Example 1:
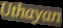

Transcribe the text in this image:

Uthayan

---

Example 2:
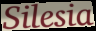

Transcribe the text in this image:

Silesia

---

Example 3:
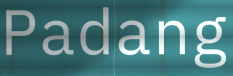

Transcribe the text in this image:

Padang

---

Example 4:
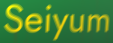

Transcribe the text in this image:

Seiyum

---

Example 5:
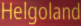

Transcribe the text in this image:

Helgoland